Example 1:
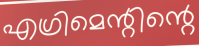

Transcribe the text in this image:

എഗ്രിമെന്റിന്റെ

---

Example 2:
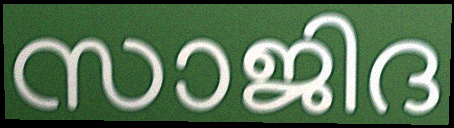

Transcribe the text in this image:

സാജിദ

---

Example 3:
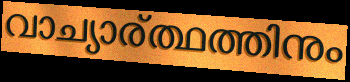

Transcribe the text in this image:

വാച്യാര്ത്ഥത്തിനും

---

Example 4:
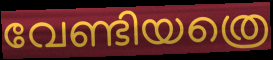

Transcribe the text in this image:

വേണ്ടിയത്രെ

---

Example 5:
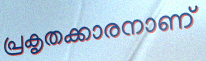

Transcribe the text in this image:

പ്രകൃതക്കാരനാണ്